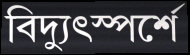
বিদ্যুৎস্পর্শে